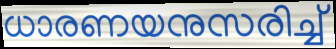
ധാരണയനുസരിച്ച്